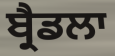
ਬ੍ਰੈਡਲਾ